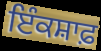
ਇੰਕਸ਼ਾਫ਼